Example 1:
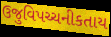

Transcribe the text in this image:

ઉજુવિપચ્ચનીકતાય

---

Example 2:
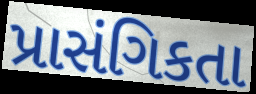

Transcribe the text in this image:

પ્રાસંગિકતા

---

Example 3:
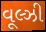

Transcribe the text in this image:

વૂલ્ઝી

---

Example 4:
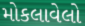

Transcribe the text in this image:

મોકલાવેલો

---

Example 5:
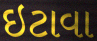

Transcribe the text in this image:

ઇટાવા